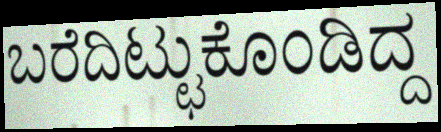
ಬರೆದಿಟ್ಟುಕೊಂಡಿದ್ದ